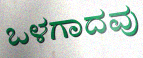
ಒಳಗಾದವು